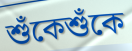
শুঁকেশুঁকে